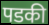
पडकी